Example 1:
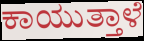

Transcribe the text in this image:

ಕಾಯುತ್ತಾಳೆ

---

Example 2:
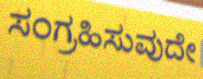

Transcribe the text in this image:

ಸಂಗ್ರಹಿಸುವುದೇ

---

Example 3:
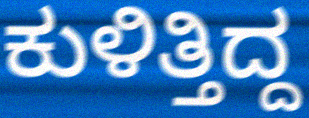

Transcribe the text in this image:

ಕುಳಿತ್ತಿದ್ದ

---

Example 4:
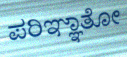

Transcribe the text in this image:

ಪರಿಞ್ಞಾತೋ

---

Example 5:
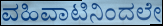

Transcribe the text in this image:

ವಹಿವಾಟಿನಿಂದಲೇ